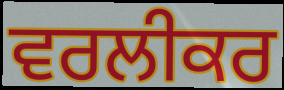
ਵਰਲੀਕਰ